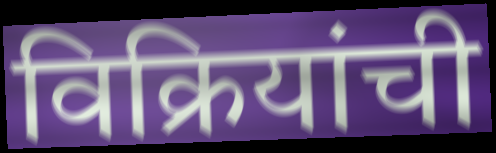
विक्रियांची